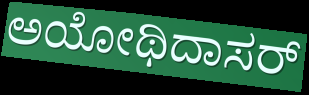
ಅಯೋಥಿದಾಸರ್